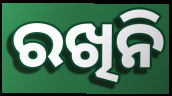
ରଖିନି